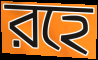
রহে